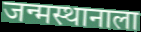
जन्मस्थानाला